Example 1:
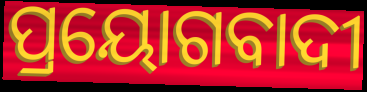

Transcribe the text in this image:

ପ୍ରୟୋଗବାଦୀ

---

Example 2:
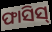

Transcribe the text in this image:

ଫାସିସ୍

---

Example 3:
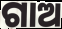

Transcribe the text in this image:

ଗାଅ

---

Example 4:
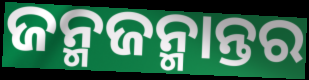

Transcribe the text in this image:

ଜନ୍ମଜନ୍ମାନ୍ତର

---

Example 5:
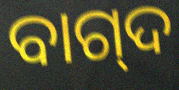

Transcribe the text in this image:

ବାଗ୍‌ଦ